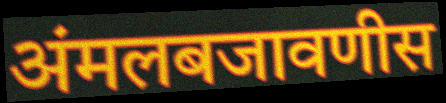
अंमलबजावणीस